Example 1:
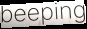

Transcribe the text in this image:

beeping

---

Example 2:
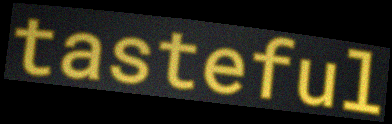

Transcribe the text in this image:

tasteful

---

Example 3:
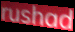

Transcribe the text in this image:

rushad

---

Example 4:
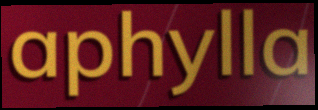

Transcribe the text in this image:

aphylla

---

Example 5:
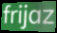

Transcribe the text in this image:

frijaz